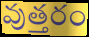
వుత్తరం